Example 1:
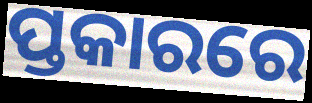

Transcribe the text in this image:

ପ୍ତକାରରେ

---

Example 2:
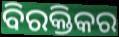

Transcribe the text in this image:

ବିରକ୍ତିକର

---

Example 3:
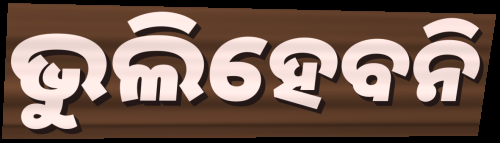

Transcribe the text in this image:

ଭୁଲିହେବନି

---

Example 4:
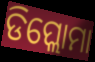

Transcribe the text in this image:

ଡିପ୍ଲୋମା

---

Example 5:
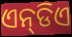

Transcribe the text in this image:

ଏନ୍‌ଡିଏ